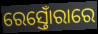
ରେସ୍ତୋଁରାରେ